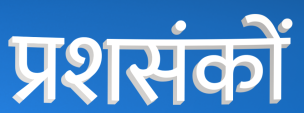
प्रशसंकों